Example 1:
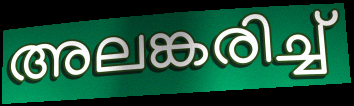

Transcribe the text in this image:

അലങ്കരിച്ച്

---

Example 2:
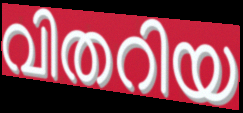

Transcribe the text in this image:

വിതറിയ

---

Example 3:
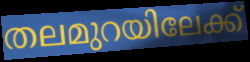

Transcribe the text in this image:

തലമുറയിലേക്ക്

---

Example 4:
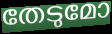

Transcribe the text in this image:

തേടുമോ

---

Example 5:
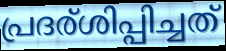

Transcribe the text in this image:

പ്രദര്ശിപ്പിച്ചത്